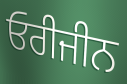
ਓਰੀਜੀਨ